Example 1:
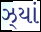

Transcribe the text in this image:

ઝ્યાં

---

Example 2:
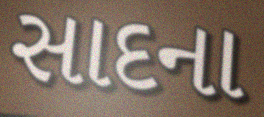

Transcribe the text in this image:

સાદના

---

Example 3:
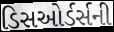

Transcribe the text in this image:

ડિસઓર્ડર્સની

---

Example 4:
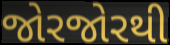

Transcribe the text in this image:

જોરજોરથી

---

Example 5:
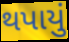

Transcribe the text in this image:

થપાયું